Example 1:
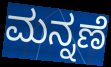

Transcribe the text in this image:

ಮನ್ನಣೆ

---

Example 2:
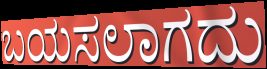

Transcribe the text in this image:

ಬಯಸಲಾಗದು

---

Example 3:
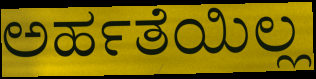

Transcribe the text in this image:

ಅರ್ಹತೆಯಿಲ್ಲ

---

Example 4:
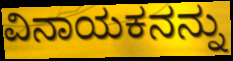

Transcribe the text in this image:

ವಿನಾಯಕನನ್ನು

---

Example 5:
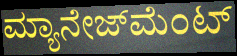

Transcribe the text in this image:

ಮ್ಯಾನೇಜ್‍ಮೆಂಟ್